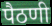
पैठणी